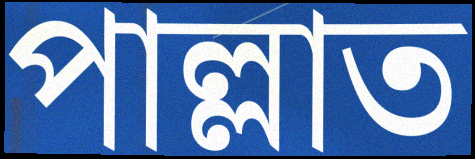
পাল্লাত